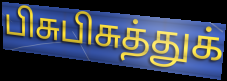
பிசுபிசுத்துக்